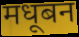
मधूबन